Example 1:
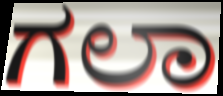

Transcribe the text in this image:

ಗಲಾ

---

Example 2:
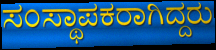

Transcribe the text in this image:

ಸಂಸ್ಥಾಪಕರಾಗಿದ್ದರು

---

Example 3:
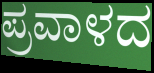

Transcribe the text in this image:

ಪ್ರವಾಳದ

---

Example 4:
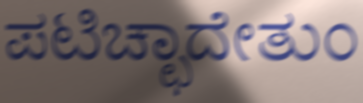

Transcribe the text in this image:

ಪಟಿಚ್ಛಾದೇತುಂ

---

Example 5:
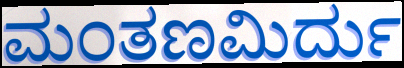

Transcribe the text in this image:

ಮಂತಣಮಿರ್ದು